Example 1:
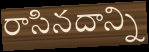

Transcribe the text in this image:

రాసినదాన్ని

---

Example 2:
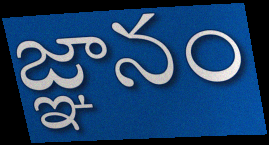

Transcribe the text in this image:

జ్ఞానం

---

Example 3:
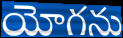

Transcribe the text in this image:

యోగను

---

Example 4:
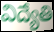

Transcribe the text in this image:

విద్యేతి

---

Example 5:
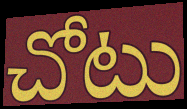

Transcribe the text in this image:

చోటు